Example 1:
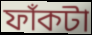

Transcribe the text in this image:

ফাঁকটা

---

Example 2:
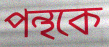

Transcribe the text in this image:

পন্থকে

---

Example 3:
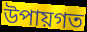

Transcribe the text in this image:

উপায়গত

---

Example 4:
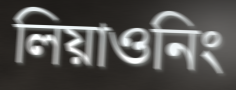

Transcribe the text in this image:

লিয়াওনিং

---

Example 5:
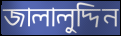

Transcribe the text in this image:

জালালুদ্দিন